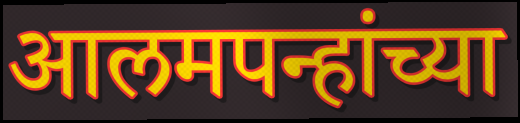
आलमपन्हांच्या